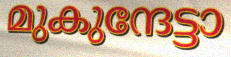
മുകുന്ദേട്ടാ